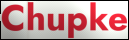
Chupke